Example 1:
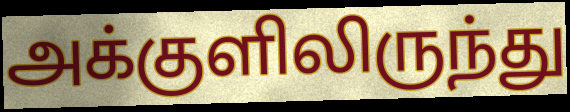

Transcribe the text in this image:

அக்குளிலிருந்து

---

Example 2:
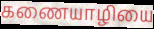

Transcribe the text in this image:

கணையாழியை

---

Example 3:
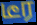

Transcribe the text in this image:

டீர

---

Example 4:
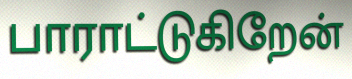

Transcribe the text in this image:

பாராட்டுகிறேன்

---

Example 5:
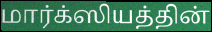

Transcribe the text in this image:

மார்க்ஸியத்தின்